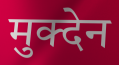
मुक्देन